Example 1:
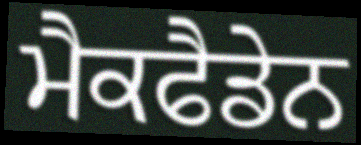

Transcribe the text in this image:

ਮੈਕਫੈਡੇਨ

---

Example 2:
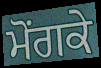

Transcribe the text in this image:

ਮੋਂਗਕੇ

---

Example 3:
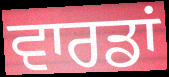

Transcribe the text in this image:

ਵਾਰਡਾਂ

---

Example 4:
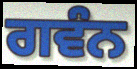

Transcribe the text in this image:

ਗਵੰਨ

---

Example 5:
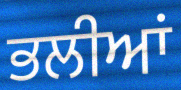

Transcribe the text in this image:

ਭਲੀਆਂ